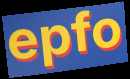
epfo